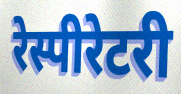
रेस्पीरेटरी